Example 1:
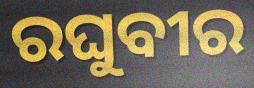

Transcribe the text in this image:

ରଘୁବୀର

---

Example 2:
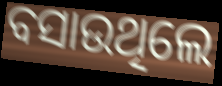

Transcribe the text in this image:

ବସାଉଥିଲେ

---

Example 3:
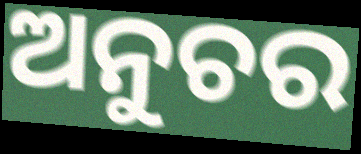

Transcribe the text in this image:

ଅନୁଚର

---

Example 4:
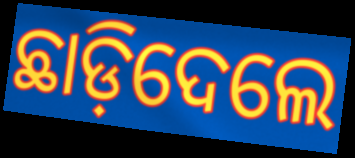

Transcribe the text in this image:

ଛାଡ଼ିଦେଲେ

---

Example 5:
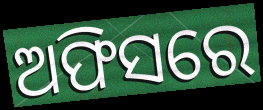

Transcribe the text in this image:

ଅଫିସରେ